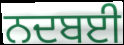
ਨਦਬਈ